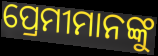
ପ୍ରେମୀମାନଙ୍କୁ